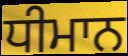
ਧੀਮਾਨ